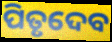
ପିତୃଦେବ